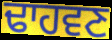
ਢਾਹਵਣ